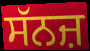
ਸੱਨਜ਼